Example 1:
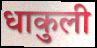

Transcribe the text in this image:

धाकुली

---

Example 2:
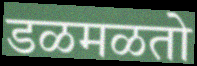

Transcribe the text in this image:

डळमळतो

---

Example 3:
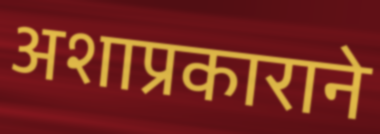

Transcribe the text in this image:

अशाप्रकाराने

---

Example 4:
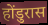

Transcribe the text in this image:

होंडुरास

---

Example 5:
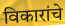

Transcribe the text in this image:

विकारांचे